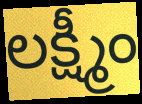
లక్ష్మీం